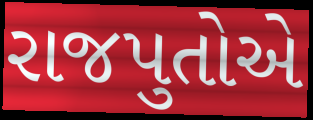
રાજપુતોએ